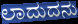
ಲಾದುದನು